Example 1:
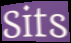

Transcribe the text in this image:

Sits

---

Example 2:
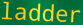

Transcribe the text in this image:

ladder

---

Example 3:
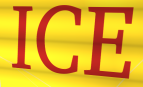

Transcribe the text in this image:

ICE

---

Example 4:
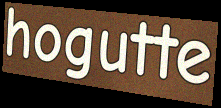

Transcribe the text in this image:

hogutte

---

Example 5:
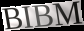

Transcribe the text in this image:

BIBM